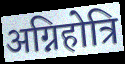
अग्निहोत्रि